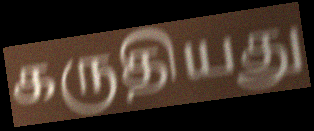
கருதியது